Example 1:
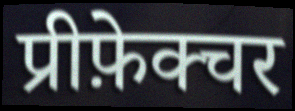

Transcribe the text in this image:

प्रीफ़ेक्चर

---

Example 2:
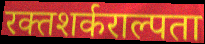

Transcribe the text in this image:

रक्तशर्कराल्पता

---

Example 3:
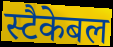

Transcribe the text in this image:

स्टैकेबल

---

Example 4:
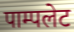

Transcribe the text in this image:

पाम्पलेट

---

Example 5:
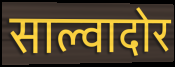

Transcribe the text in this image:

साल्वादोर